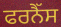
ਫਰਨੈੱਸ